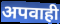
अपवाही